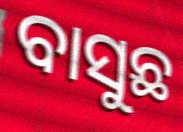
ବାସୁଛ